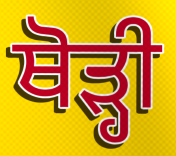
ਥੋਡ਼੍ਹੀ